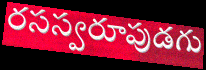
రసస్వరూపుడగు